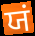
ਯਂ